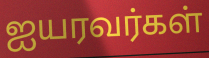
ஐயரவர்கள்